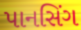
પાનસિંગ